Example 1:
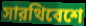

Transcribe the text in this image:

সারথিবেশে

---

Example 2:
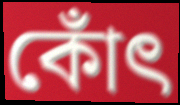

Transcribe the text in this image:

কোঁৎ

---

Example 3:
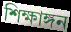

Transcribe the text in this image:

শিক্ষাঙ্গন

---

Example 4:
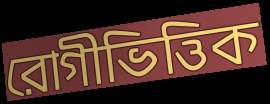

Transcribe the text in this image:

রোগীভিত্তিক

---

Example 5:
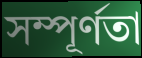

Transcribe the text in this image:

সম্পূর্ণতা